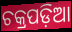
ଚକ୍ରପଡ଼ିଆ